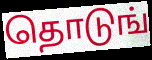
தொடுங்